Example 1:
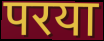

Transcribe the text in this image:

परया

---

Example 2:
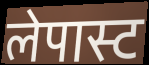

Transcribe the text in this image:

लेपास्ट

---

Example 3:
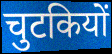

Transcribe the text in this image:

चुटकियों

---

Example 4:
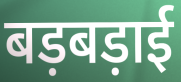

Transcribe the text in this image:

बड़बड़ाई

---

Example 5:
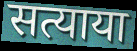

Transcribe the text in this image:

सत्याया